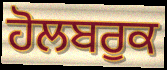
ਹੋਲਬਰੁਕ